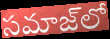
సమాజ్‌లో